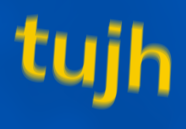
tujh